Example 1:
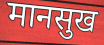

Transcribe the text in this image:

मानसुख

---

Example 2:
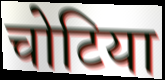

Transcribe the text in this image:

चोटिया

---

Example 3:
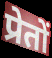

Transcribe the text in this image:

प्रेतों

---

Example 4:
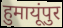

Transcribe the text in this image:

हुमायूंपुर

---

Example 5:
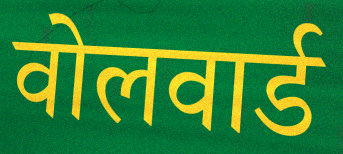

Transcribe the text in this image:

वोलवार्ड